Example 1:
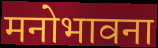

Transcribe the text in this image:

मनोभावना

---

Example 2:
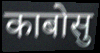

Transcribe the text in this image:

काबोसु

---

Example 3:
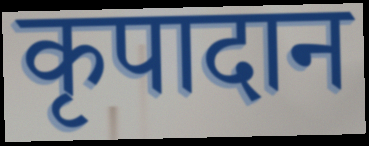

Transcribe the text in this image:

कृपादान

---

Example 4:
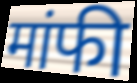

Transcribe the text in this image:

मांफी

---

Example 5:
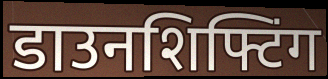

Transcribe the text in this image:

डाउनशिफ्टिंग